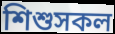
শিশুসকল